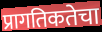
प्रागतिकतेचा